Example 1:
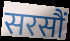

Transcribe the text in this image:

सरसौं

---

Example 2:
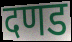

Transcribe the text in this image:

दणड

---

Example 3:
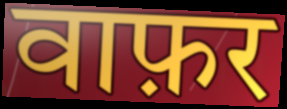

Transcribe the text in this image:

वाफ़र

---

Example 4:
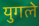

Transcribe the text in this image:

युगले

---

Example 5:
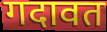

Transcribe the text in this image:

गदावत